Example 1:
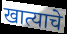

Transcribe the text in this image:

खात्याचे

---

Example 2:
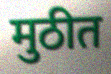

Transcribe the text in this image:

मुठीत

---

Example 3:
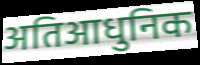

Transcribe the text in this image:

अतिआधुनिक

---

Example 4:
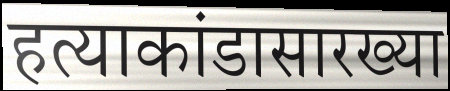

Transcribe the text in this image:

हत्याकांडासारख्या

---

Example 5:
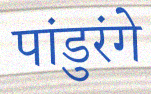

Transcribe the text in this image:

पांडुरंगे